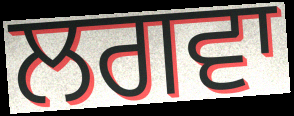
ਲਗਵਾ